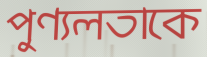
পুণ্যলতাকে